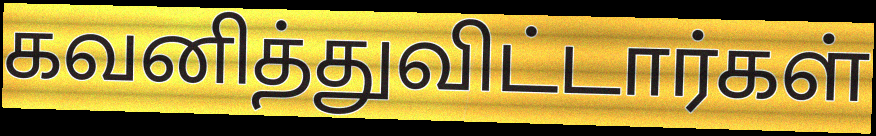
கவனித்துவிட்டார்கள்